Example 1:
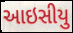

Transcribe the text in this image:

આઇસીયુ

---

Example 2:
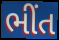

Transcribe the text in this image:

ભીંત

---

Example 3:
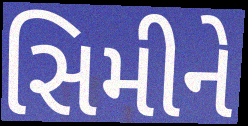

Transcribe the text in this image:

સિમીને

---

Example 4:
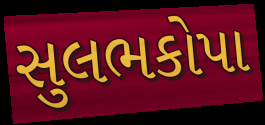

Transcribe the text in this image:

સુલભકોપા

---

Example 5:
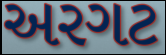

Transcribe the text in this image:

અરગટ